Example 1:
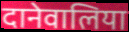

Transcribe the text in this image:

दानेवालिया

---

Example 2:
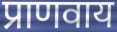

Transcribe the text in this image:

प्राणवाय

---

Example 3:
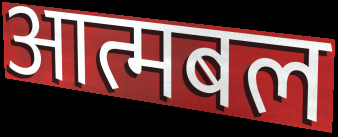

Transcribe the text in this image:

आत्मबल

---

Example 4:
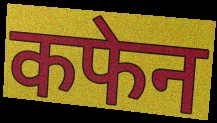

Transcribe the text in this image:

कफेन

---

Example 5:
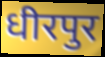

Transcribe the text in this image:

धीरपुर